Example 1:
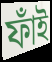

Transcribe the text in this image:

ফাঁই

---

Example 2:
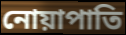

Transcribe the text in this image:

নোয়াপাতি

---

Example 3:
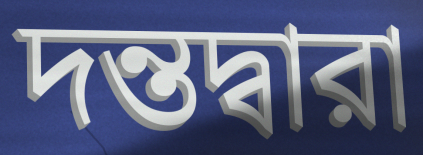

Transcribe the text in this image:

দন্তদ্বারা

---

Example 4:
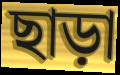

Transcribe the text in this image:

ছাড়া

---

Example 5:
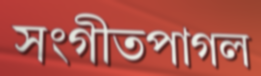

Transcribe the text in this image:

সংগীতপাগল